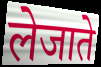
लेजाते